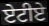
ਏਟੀਏ